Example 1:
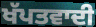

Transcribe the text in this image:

ਖੱਪਤਵਾਦੀ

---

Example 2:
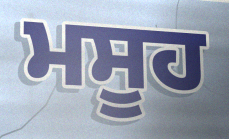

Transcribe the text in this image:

ਮਸੂਹ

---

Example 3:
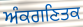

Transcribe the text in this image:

ਅੰਕਗਣਿਤਕ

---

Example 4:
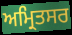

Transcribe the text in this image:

ਅਮ੍ਰਿਤਸਰ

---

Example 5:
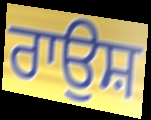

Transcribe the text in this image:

ਰਾਉਸ਼